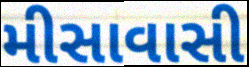
મીસાવાસી